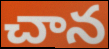
చాన